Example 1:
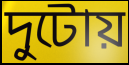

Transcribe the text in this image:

দুটোয়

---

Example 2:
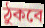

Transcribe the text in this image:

ঠুকবে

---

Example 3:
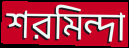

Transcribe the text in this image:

শরমিন্দা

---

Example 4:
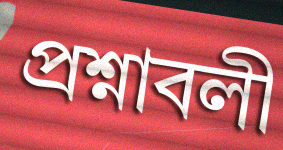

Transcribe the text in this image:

প্রশ্নাবলী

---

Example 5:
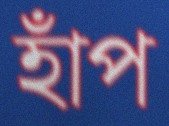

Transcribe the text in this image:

হাঁপ